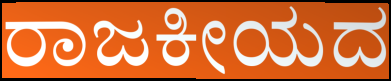
ರಾಜಕೀಯದ